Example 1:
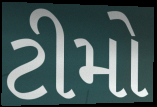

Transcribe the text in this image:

ટીમો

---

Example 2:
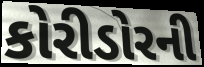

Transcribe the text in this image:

કોરીડોરની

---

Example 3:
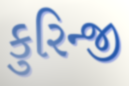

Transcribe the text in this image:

કુરિન્જી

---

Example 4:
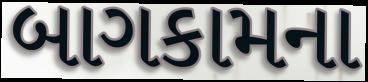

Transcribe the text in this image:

બાગકામના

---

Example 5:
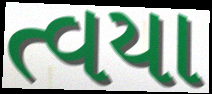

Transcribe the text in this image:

ત્વયા